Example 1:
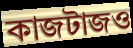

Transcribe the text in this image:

কাজটাজও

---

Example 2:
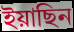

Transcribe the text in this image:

ইয়াছিন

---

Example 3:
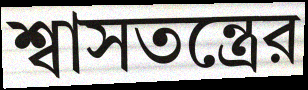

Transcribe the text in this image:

শ্বাসতন্ত্রের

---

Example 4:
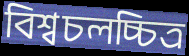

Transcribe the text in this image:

বিশ্বচলচ্চিত্র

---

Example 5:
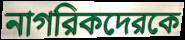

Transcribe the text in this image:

নাগরিকদেরকে